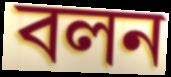
বলন